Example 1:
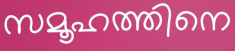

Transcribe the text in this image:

സമൂഹത്തിനെ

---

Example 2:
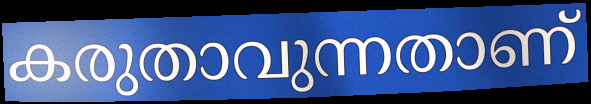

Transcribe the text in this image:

കരുതാവുന്നതാണ്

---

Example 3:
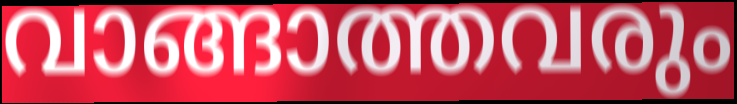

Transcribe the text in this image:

വാങ്ങാത്തവരും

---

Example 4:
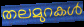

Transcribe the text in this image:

തലമുറകൾ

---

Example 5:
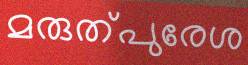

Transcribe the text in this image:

മരുത്പുരേശ